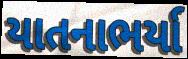
યાતનાભર્યા